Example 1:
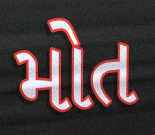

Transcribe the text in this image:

મોત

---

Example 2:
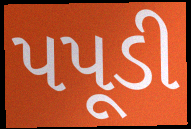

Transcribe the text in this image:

પપૂડી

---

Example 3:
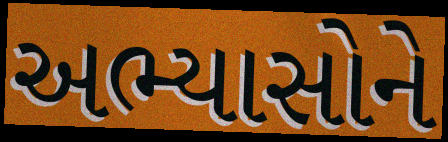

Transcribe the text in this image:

અભ્યાસોને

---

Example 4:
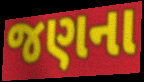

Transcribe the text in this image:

જણના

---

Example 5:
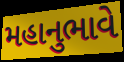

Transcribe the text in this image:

મહાનુભાવે